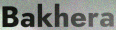
Bakhera